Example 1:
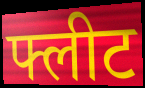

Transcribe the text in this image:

फ्लीट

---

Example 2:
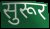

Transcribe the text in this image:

सुरूर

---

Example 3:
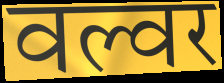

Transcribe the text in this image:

वल्वर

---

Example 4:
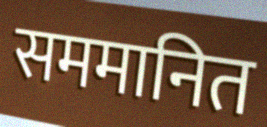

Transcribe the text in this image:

सममानित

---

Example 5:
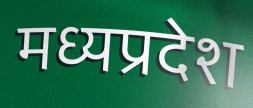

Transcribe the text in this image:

मध्यप्रदेश